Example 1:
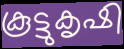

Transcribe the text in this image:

കൂട്ടുകൃഷി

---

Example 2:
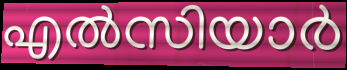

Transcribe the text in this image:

എൽസിയാർ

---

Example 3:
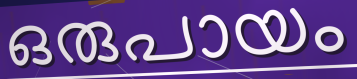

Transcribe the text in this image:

ഒരുപായം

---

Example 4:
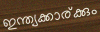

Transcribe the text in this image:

ഇന്ത്യക്കാര്ക്കും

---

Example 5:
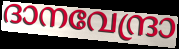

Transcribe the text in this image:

ദാനവേന്ദ്രാ